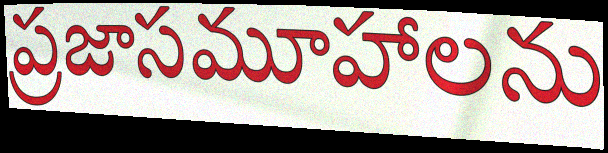
ప్రజాసమూహాలను